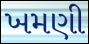
ખમણી